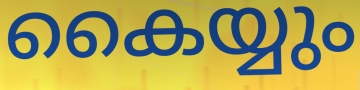
കൈയ്യും